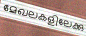
മേഖലകളിലേക്കു